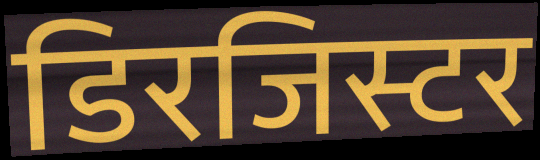
डिरजिस्टर